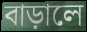
বাড়ালে